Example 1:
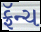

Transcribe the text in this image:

ફ્રૅન્ચ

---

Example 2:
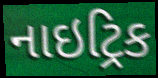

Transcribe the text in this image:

નાઇટ્રિક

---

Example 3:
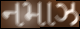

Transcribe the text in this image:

નમાઝ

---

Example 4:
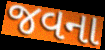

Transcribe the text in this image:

જવના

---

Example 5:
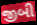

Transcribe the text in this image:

જીબી